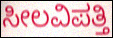
ಸೀಲವಿಪತ್ತಿ